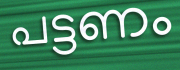
പട്ടണം